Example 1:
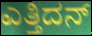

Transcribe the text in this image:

ಎತ್ತಿದನ್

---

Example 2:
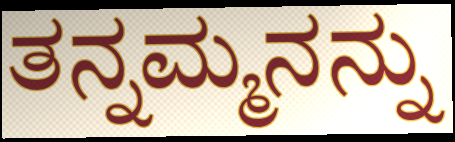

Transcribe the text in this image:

ತನ್ನಮ್ಮನನ್ನು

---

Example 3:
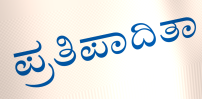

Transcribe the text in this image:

ಪ್ರತಿಪಾದಿತಾ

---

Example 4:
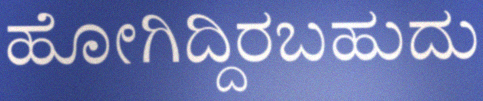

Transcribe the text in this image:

ಹೋಗಿದ್ದಿರಬಹುದು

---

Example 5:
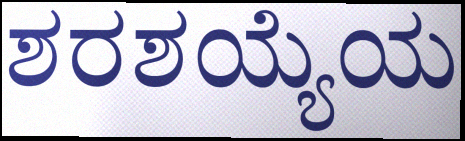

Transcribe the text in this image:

ಶರಶಯ್ಯೆಯ